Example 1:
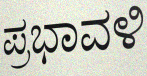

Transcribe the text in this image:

ಪ್ರಭಾವಳಿ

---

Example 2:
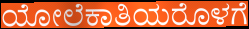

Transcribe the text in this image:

ಯೋಲೆಕಾತಿಯರೊಳಗೆ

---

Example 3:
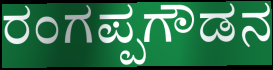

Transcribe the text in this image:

ರಂಗಪ್ಪಗೌಡನ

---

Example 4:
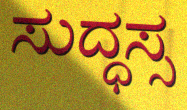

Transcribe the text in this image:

ಸುದ್ಧಸ್ಸ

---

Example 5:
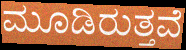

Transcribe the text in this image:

ಮೂಡಿರುತ್ತವೆ